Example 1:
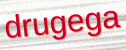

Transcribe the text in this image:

drugega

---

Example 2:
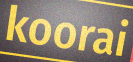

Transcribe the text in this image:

koorai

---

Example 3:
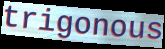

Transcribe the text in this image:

trigonous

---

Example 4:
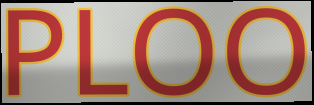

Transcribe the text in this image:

PLOO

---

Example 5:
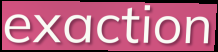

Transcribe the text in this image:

exaction